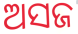
ଅସଜ